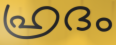
ഹ്രദം